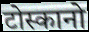
टोस्कानो